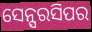
ସେନ୍ସରସିପର